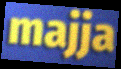
majja